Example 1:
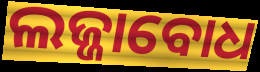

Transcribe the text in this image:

ଲଜ୍ଜାବୋଧ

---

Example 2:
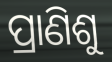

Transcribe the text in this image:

ପ୍ରାଣିଶୁ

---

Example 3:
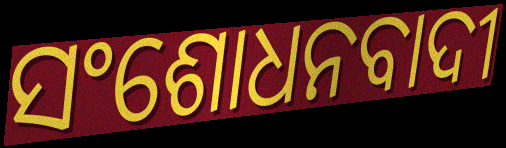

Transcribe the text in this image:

ସଂଶୋଧନବାଦୀ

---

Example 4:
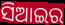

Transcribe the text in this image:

ସିଆଇର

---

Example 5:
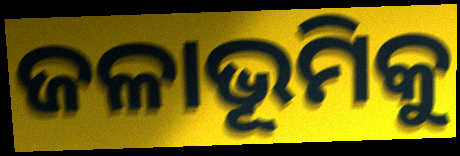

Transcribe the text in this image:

ଜଳାଭୂମିକୁ